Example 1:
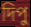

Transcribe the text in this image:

দিপু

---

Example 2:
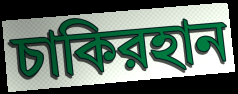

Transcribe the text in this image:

চাকিরহান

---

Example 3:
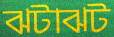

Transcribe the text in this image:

ঝটাঝট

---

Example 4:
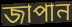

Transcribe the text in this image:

জাপান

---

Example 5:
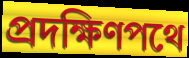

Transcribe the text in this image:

প্রদক্ষিণপথে